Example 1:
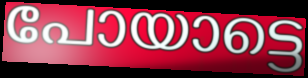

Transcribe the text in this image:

പോയാട്ടെ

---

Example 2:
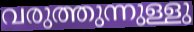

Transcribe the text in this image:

വരുത്തുന്നുള്ളു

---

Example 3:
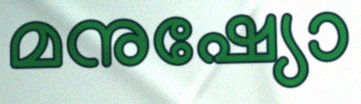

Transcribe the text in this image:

മനുഷ്യോ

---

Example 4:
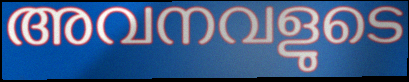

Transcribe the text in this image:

അവനവളുടെ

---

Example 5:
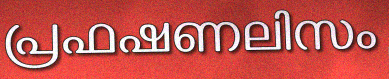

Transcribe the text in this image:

പ്രഫഷണലിസം